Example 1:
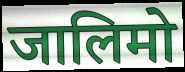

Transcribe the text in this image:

जालिमो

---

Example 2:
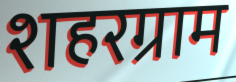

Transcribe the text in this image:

शहरग्राम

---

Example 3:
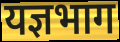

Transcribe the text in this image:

यज्ञभाग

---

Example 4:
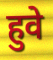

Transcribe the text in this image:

हुवे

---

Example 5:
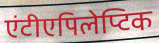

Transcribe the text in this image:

एंटीएपिलेप्टिक